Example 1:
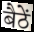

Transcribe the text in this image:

बैठें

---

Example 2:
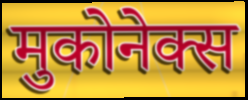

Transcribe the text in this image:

मुकोनेक्स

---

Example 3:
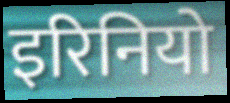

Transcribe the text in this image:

इरिनियो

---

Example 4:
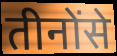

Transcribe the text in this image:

तीनोंसे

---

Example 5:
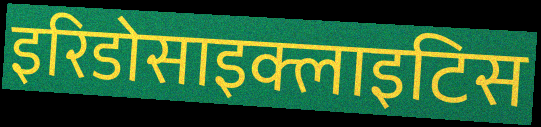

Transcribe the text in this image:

इरिडोसाइक्लाइटिस